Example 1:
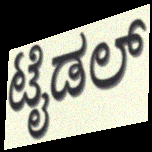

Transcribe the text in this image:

ಟೈಡಲ್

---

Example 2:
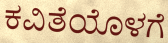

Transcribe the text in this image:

ಕವಿತೆಯೊಳಗೆ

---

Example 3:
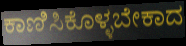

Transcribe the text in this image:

ಕಾಣಿಸಿಕೊಳ್ಳಬೇಕಾದ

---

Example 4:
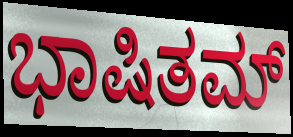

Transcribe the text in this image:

ಭಾಷಿತಮ್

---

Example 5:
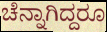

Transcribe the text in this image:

ಚೆನ್ನಾಗಿದ್ದರೂ